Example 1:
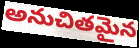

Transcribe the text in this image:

అనుచితమైన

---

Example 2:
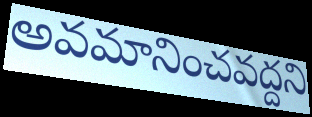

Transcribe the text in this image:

అవమానించవద్దని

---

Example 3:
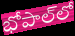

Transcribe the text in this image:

భోపాల్‌లో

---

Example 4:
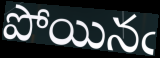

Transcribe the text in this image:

పోయినఁ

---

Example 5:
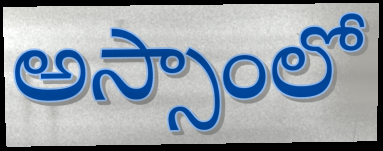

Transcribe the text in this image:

అస్సాంలో